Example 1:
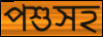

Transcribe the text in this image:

পশুসহ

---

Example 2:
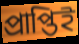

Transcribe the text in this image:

প্রাপ্তিই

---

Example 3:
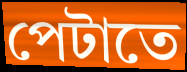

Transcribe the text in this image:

পেটাতে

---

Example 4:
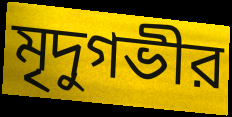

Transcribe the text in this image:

মৃদুগভীর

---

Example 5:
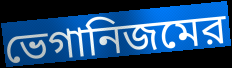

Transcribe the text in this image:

ভেগানিজমের